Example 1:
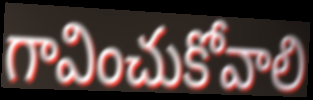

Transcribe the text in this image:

గావించుకోవాలి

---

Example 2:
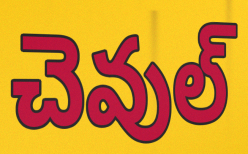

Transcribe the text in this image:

చెవుల్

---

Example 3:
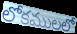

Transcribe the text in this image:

లోకములలో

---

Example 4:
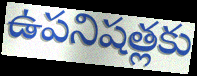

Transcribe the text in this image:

ఉపనిషత్లకు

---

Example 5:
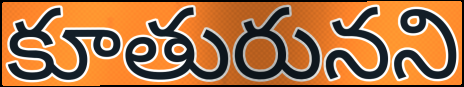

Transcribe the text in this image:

కూతురునని